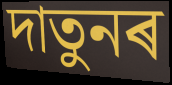
দাতুনৰ